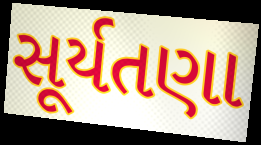
સૂર્યતણા